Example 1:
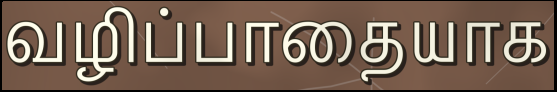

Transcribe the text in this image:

வழிப்பாதையாக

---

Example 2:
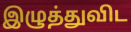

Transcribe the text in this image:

இழுத்துவிட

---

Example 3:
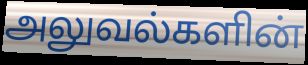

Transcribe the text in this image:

அலுவல்களின்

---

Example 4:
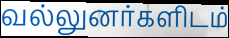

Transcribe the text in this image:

வல்லுனர்களிடம்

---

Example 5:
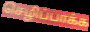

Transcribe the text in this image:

செழிப்பாக்க